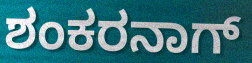
ಶಂಕರನಾಗ್